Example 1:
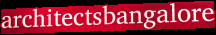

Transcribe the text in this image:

architectsbangalore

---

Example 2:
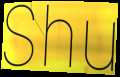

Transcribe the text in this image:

Shu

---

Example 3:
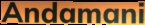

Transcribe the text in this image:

Andamani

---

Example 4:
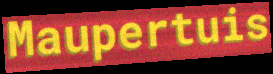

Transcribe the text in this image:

Maupertuis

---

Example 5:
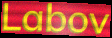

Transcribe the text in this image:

Labov